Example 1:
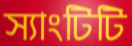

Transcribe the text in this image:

স্যাংটিটি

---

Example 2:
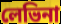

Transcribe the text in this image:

লেভিনা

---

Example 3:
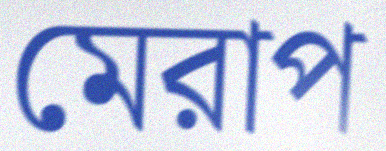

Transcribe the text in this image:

মেরাপ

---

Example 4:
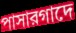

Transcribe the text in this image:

পাসারগাদে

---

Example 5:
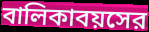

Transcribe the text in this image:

বালিকাবয়সের